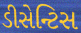
ડીસેન્ટિસ